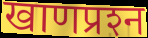
खाणप्रश्न